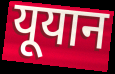
यूयान